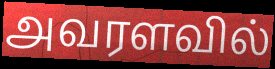
அவரளவில்